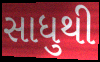
સાધુથી